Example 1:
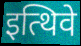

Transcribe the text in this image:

इत्थिवे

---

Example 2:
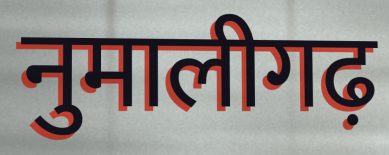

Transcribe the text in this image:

नुमालीगढ़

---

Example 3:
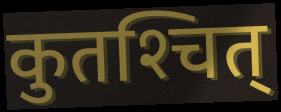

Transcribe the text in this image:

कुतश्चित्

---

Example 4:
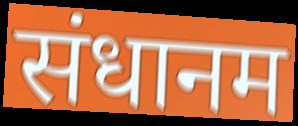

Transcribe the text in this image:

संधानम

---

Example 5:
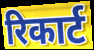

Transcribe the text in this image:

रिकार्ट